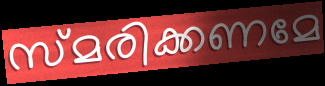
സ്മരിക്കണമേ